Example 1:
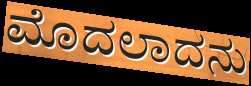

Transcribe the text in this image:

ಮೊದಲಾದನು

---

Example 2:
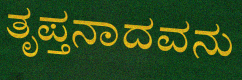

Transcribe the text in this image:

ತೃಪ್ತನಾದವನು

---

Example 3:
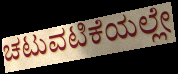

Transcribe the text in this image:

ಚಟುವಟಿಕೆಯಲ್ಲೇ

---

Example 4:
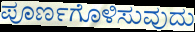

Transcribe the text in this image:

ಪೂರ್ಣಗೊಳಿಸುವುದು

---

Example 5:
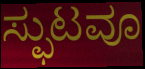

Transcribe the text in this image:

ಸ್ಫುಟವೂ